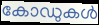
കോഡുകൾ